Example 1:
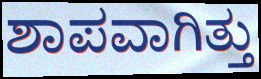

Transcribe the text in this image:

ಶಾಪವಾಗಿತ್ತು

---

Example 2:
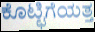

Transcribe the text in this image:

ಕೊಟ್ಟಿಗೆಯತ್ತ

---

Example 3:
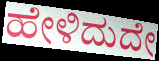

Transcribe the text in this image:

ಹೇಳಿದುದೇ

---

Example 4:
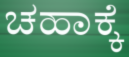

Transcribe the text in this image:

ಚಹಾಕ್ಕೆ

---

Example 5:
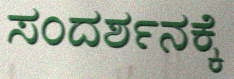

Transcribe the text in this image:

ಸಂದರ್ಶನಕ್ಕೆ